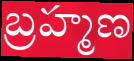
బ్రహ్మణ